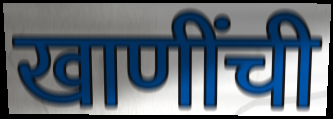
खाणींची